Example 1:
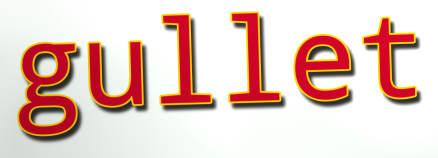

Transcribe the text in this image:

gullet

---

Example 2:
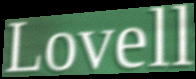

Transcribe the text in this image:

Lovell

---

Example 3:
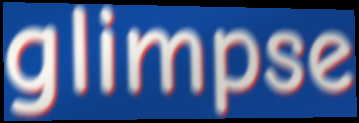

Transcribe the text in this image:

glimpse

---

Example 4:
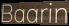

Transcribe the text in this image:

Baarin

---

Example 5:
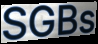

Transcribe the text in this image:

SGBs